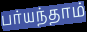
பர்யந்தாம்